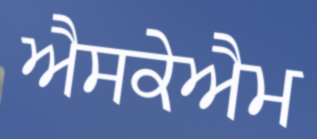
ਐਸਕੇਐਮ